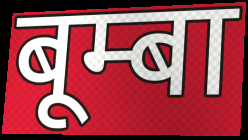
बूम्बा